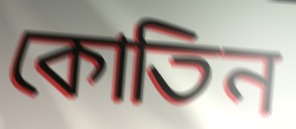
কোতিন